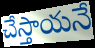
చేస్తాయనే